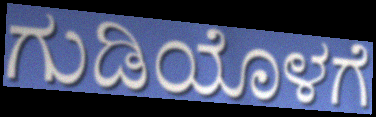
ಗುಡಿಯೊಳಗೆ